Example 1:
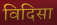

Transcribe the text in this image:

विदिसा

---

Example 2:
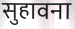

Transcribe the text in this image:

सुहावना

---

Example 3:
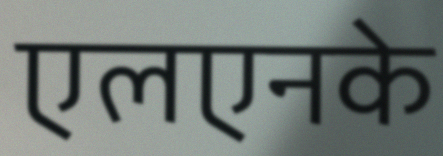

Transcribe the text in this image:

एलएनके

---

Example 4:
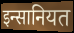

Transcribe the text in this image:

इन्सानियत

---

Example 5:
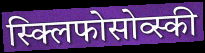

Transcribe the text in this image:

स्क्लिफोसोव्स्की